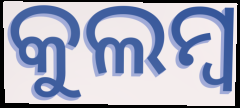
କୁଲମ୍ବ